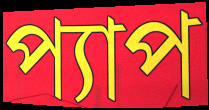
প্যাপ